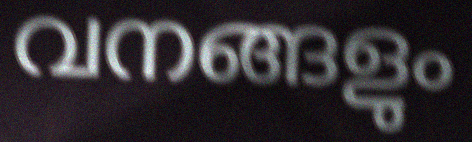
വനങ്ങളും